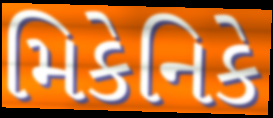
મિકેનિકે